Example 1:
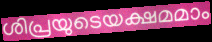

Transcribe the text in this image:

ശിപ്രയുടെയക്ഷമമാം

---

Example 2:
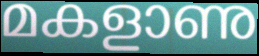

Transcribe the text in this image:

മകളാണു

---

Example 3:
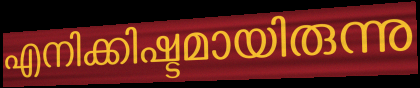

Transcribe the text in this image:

എനിക്കിഷ്ടമായിരുന്നു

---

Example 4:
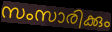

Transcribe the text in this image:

സംസാരിക്കും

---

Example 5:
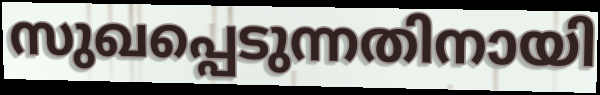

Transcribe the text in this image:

സുഖപ്പെടുന്നതിനായി